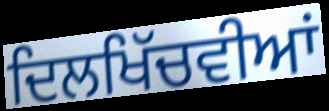
ਦਿਲਖਿੱਚਵੀਆਂ